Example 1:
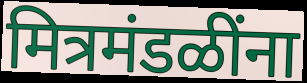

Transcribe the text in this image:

मित्रमंडळींना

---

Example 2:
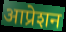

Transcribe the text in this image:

आप्रेशन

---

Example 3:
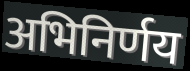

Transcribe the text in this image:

अभिनिर्णय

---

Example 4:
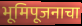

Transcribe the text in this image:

भूमिपूजनाचा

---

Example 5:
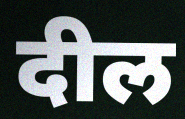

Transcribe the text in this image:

दील